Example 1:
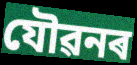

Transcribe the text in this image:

যৌৱনৰ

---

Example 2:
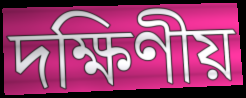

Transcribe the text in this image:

দক্ষিণীয়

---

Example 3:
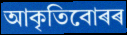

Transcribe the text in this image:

আকৃতিবোৰৰ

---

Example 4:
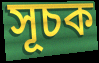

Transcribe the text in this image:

সূচক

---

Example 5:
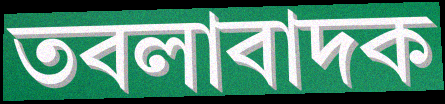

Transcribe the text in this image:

তবলাবাদক